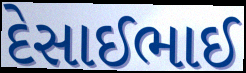
દેસાઈભાઈ